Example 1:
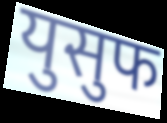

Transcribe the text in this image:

युसुफ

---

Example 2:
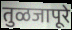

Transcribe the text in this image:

तुळजापूरे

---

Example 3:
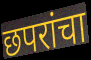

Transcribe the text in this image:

छपरांचा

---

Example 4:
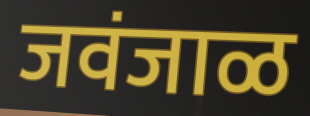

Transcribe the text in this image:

जवंजाळ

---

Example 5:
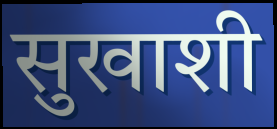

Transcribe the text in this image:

सुखाशी